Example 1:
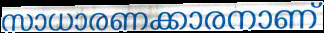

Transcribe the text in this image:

സാധാരണക്കാരനാണ്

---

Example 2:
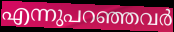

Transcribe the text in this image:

എന്നുപറഞ്ഞവർ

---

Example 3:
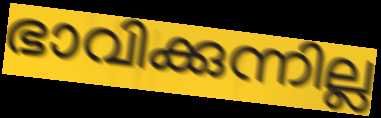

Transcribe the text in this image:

ഭാവിക്കുന്നില്ല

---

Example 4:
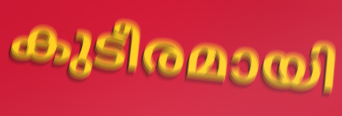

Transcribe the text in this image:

കുടീരമായി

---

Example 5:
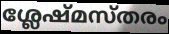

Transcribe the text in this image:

ശ്ലേഷ്മസ്തരം